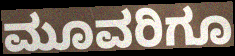
ಮೂವರಿಗೂ